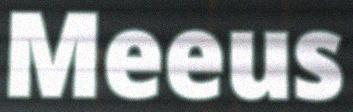
Meeus